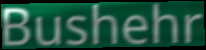
Bushehr